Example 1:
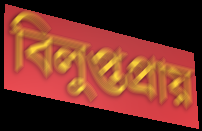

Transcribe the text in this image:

বিলুপ্তপ্রায়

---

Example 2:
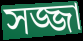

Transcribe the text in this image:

সজ্জা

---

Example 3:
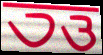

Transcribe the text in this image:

তত্ত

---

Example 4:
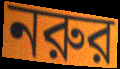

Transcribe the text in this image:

নরুর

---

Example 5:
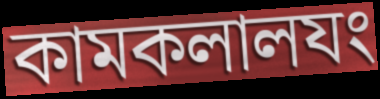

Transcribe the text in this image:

কামকলালযং